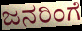
ಜನರಿಂಗೆ